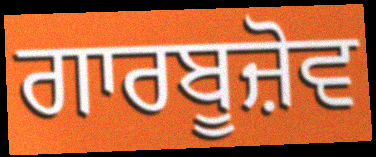
ਗਾਰਬੂਜ਼ੋਵ